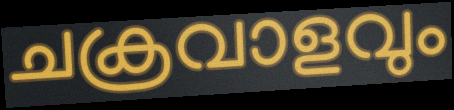
ചക്രവാളവും